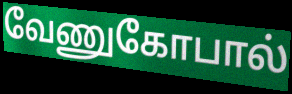
வேணுகோபால்